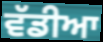
ਵੱਡੀਆ